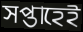
সপ্তাহেই